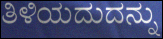
ತಿಳಿಯದುದನ್ನು